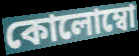
কোলোম্বো